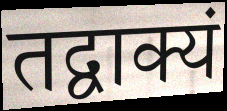
तद्वाक्यं